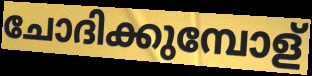
ചോദിക്കുമ്പോള്